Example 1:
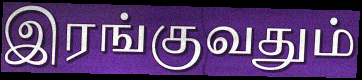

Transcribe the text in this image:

இரங்குவதும்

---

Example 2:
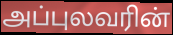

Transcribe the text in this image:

அப்புலவரின்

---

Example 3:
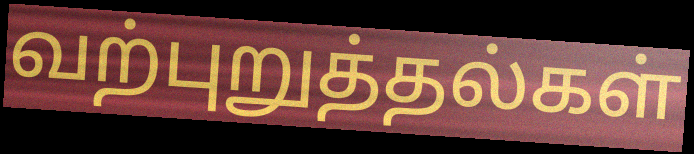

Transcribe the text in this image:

வற்புறுத்தல்கள்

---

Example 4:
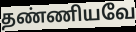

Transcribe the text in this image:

தண்ணியவே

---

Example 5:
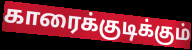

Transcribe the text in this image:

காரைக்குடிக்கும்